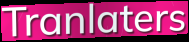
Tranlaters